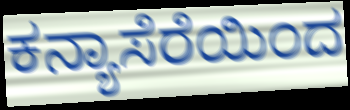
ಕನ್ಯಾಸೆರೆಯಿಂದ